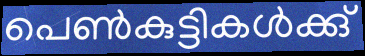
പെൺകുട്ടികൾക്കു്